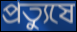
প্রত্যুষে